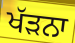
ਖੱੜਨਾ